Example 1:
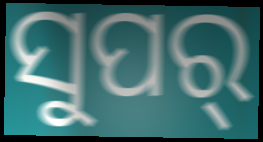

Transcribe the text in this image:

ସୁପର୍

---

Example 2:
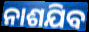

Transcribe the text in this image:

ନାଶଯିବ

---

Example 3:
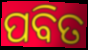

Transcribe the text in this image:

ପବିତ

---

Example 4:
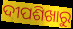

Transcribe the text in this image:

ଦୀପଶିଖାରୁ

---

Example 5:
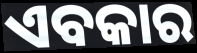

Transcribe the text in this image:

ଏବକାର